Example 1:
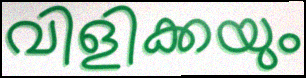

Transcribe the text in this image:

വിളിക്കയും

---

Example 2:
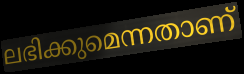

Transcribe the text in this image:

ലഭിക്കുമെന്നതാണ്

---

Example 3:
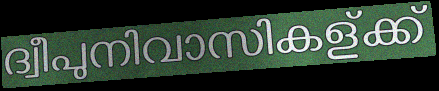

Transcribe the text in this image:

ദ്വീപുനിവാസികള്ക്ക്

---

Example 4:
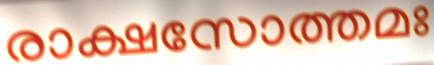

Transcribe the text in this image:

രാക്ഷസോത്തമഃ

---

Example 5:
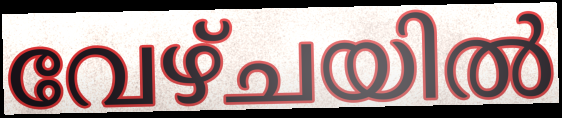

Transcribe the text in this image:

വേഴ്ചയിൽ